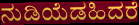
ನುಡಿಯೆಡಹಿದರೆ